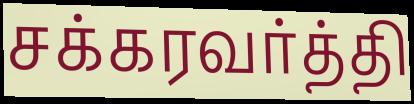
சக்கரவர்த்தி